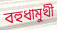
বহুধামুখী